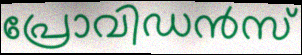
പ്രോവിഡൻസ്